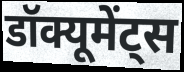
डॉक्यूमेंट्स